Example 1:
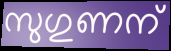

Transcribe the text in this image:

സുഗുണന്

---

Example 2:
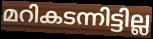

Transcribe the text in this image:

മറികടന്നിട്ടില്ല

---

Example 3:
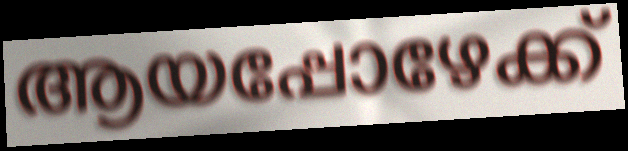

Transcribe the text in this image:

ആയപ്പോഴേക്ക്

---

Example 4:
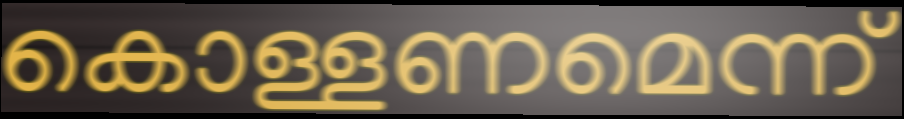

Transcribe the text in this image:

കൊള്ളണമെന്ന്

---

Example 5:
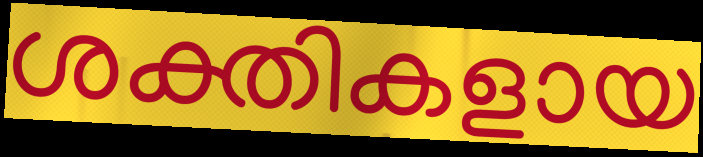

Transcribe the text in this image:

ശക്തികളായ